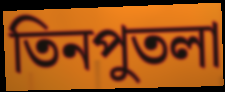
তিনপুতলা